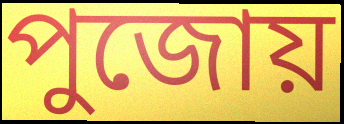
পুজোয়